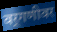
वर्गणीवर